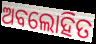
ଅବଲୋହିତ